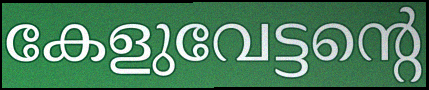
കേളുവേട്ടന്റെ